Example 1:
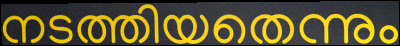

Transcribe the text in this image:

നടത്തിയതെന്നും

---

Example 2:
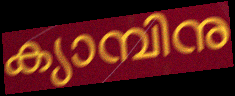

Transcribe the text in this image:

ക്യാമ്പിനു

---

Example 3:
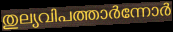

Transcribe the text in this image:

തുല്യവിപത്താർന്നോർ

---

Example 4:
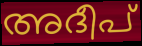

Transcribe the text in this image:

അദീപ്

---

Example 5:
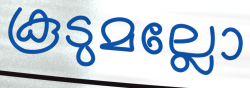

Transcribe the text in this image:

കൂടുമല്ലോ